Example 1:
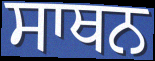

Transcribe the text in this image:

ਸਾਥਨ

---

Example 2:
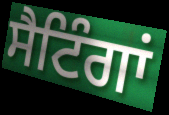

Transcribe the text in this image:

ਸੈਟਿੰਗਾਂ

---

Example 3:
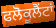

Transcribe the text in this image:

ਫਲੋਕੂਲੈਂਟਾਂ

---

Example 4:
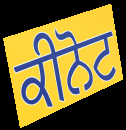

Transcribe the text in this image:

ਕੀਨੋਟ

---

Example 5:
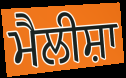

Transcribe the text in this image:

ਮੈਲੀਸ਼ਾ